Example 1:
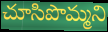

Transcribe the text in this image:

చూసిపొమ్మని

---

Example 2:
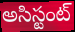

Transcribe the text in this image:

అసిస్టంట్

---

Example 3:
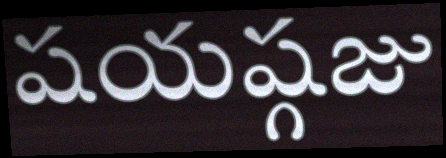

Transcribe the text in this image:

షయష్గజు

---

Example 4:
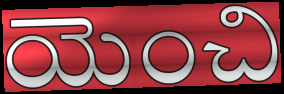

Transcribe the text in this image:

యెంచి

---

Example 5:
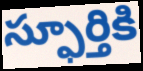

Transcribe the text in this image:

స్ఫూర్తికి